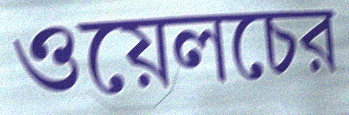
ওয়েলচের